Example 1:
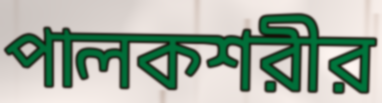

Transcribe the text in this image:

পালকশরীর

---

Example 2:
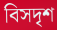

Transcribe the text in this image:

বিসদৃশ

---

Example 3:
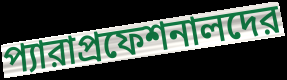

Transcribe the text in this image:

প্যারাপ্রফেশনালদের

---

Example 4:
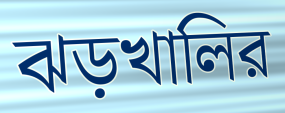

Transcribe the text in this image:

ঝড়খালির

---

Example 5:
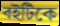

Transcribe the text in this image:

বইটিকে